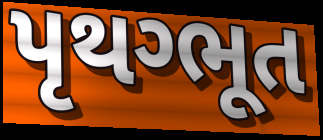
પૃથગ્ભૂત